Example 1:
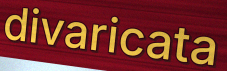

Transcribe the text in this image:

divaricata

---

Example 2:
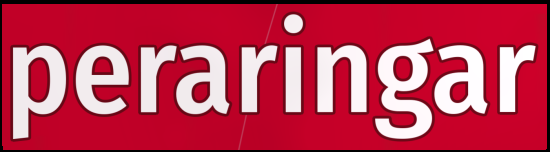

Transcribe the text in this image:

peraringar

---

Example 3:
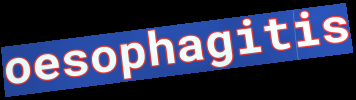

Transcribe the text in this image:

oesophagitis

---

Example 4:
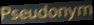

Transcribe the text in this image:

Pseudonym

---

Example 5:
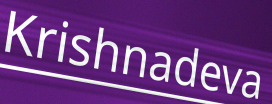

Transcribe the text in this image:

Krishnadeva